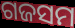
ଗଜସମ